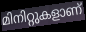
മിനിറ്റുകളാണ്